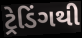
ટ્રેડિંગથી